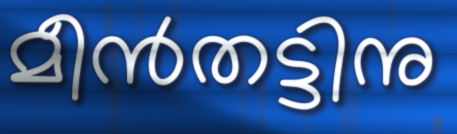
മീൻതട്ടിനു